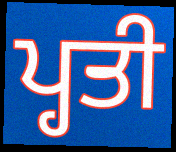
ਪ੍ਹਤੀ